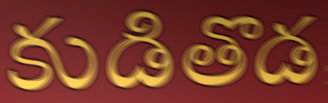
కుడితొడ